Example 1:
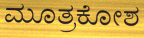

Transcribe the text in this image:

ಮೂತ್ರಕೋಶ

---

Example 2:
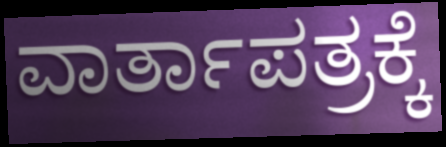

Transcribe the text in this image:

ವಾರ್ತಾಪತ್ರಕ್ಕೆ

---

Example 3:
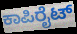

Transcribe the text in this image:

ಕಾಪಿರೈಟ್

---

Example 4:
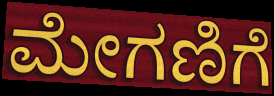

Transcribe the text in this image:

ಮೇಗಣಿಗೆ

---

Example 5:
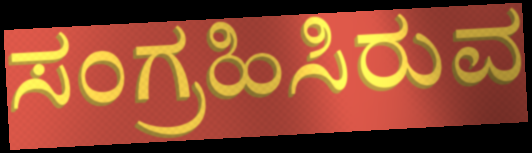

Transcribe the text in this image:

ಸಂಗ್ರಹಿಸಿರುವ